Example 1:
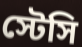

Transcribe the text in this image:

স্টেসি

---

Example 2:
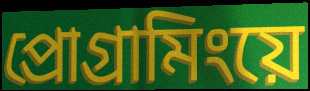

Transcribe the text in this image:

প্রোগ্রামিংয়ে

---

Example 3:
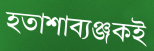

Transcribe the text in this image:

হতাশাব্যঞ্জকই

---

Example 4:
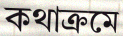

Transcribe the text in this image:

কথাক্রমে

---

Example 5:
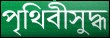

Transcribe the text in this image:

পৃথিবীসুদ্ধ